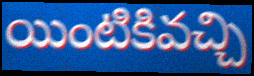
యింటికివచ్చి